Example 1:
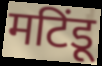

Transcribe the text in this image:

मटिंडू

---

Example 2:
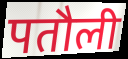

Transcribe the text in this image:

पतौली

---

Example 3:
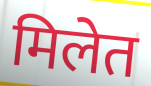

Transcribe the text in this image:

मिलेत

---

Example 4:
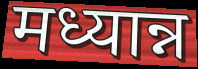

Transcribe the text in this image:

मध्यान्न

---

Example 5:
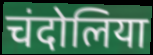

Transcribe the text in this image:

चंदोलिया